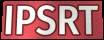
IPSRT